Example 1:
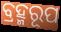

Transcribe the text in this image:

ବ୍ରହ୍ମରୂପ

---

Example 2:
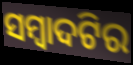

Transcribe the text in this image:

ସମ୍ବାଦଟିର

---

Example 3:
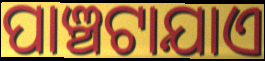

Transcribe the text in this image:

ପାଞ୍ଚଟାଯାଏ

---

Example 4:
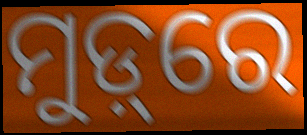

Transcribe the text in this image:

ମୁଡ଼୍‌ରେ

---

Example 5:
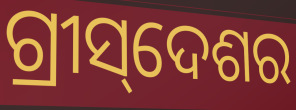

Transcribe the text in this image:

ଗ୍ରୀସ୍‌ଦେଶର